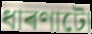
ধাৰণাটো